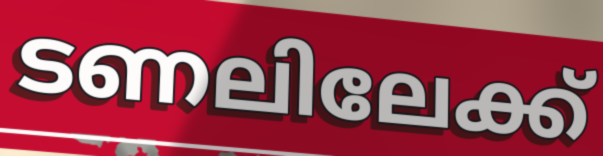
ടണലിലേക്ക്